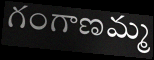
గంగాణమ్మ